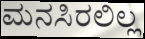
ಮನಸಿರಲಿಲ್ಲ